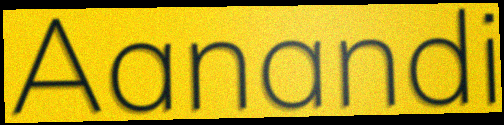
Aanandi